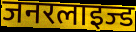
जनरलाइज्ड